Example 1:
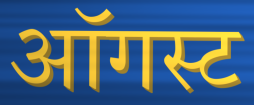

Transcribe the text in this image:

ऑगस्ट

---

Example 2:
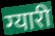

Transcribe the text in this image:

ग्यारी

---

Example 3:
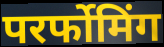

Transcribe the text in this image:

परर्फोमिंग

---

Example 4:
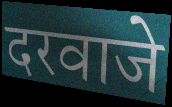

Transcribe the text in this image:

दरवाजे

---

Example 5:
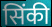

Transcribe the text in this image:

सिंकी